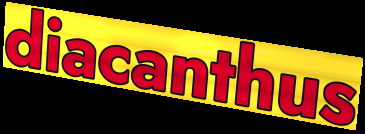
diacanthus